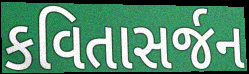
કવિતાસર્જન